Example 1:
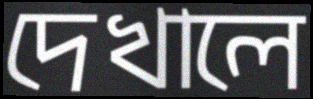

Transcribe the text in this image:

দেখালে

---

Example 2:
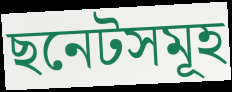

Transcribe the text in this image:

ছনেটসমূহ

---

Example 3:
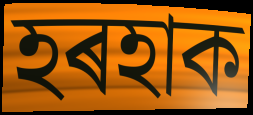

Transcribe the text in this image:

হৰহাক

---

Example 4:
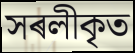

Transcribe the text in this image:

সৰলীকৃত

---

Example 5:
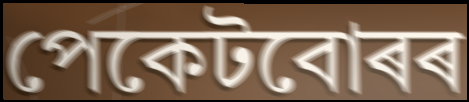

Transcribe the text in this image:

পেকেটবোৰৰ